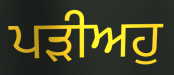
ਪੜੀਅਹੁ